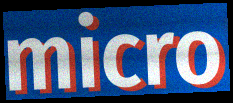
micro